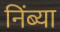
निंब्या